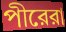
পীরেরা